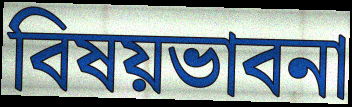
বিষয়ভাবনা